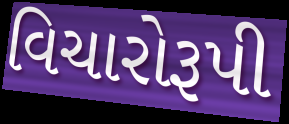
વિચારોરૂપી